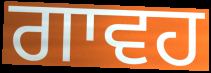
ਗਾਵਹ